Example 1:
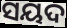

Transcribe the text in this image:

ସୟଦ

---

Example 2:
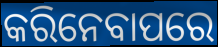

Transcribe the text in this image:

କରିନେବାପରେ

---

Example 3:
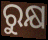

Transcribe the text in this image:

ରୁକ୍ଷ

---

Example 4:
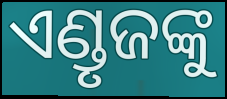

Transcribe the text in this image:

ଏଣ୍ଡୃଜଙ୍କୁ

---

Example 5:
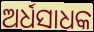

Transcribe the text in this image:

ଅର୍ଧସାଧକ